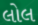
લોલ